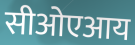
सीओएआय